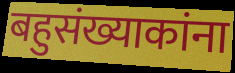
बहुसंख्याकांना